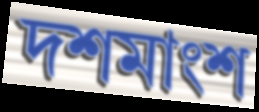
দশমাংশ